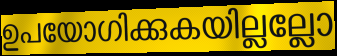
ഉപയോഗിക്കുകയില്ലല്ലോ